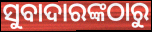
ସୁବାଦାରଙ୍କଠାରୁ